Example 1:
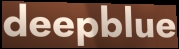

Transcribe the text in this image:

deepblue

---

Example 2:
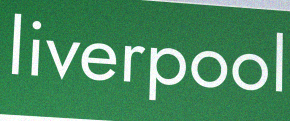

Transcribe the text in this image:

liverpool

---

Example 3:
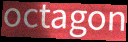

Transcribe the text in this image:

octagon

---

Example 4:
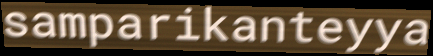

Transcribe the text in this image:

samparikanteyya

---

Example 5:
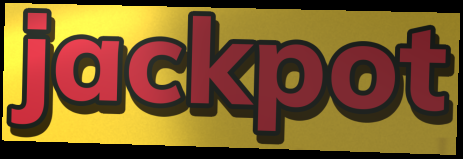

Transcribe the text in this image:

jackpot